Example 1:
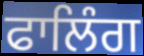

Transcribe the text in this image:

ਫਾਲਿੰਗ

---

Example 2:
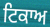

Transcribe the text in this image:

ਟਿਕਾਅ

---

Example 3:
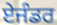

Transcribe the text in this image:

ਏਜੰਡਰ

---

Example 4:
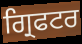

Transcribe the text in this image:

ਗ੍ਰਿਫਟਰ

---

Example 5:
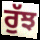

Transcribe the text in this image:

ਰੁੱਝ